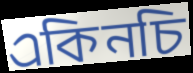
একিনচি